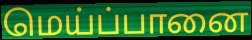
மெய்ப்பானை